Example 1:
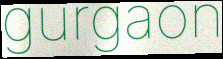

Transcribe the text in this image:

gurgaon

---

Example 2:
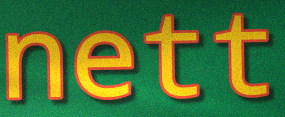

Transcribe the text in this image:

nett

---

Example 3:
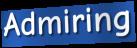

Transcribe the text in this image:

Admiring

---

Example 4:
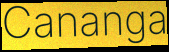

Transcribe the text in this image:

Cananga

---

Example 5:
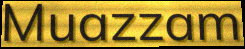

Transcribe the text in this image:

Muazzam